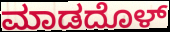
ಮಾಡದೊಳ್